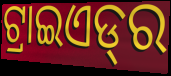
ଟ୍ରାଇଏଡ୍‌ର